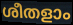
ശീതളാം